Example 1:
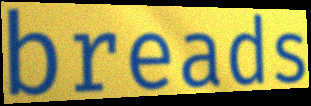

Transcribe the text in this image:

breads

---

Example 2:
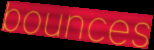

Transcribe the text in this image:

bounces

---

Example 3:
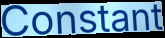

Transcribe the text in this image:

Constant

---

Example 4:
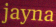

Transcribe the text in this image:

jayna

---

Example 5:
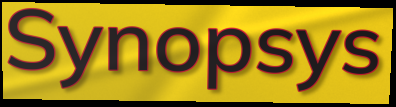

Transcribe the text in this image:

Synopsys